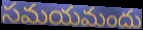
సమయమందు